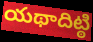
యథాదిట్ఠి